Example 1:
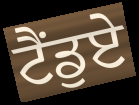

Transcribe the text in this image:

ਟੈਂਡੁਏ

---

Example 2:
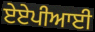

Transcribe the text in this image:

ਏਏਪੀਆਈ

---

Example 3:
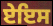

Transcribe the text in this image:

ਏਇਸ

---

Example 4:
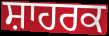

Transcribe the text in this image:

ਸ਼ਾਹਰਕ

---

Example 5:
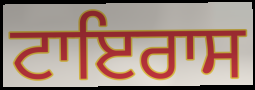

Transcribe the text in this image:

ਟਾਇਰਾਸ